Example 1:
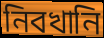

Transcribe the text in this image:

নিবখানি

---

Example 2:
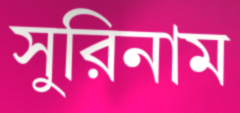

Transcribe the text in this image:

সুরিনাম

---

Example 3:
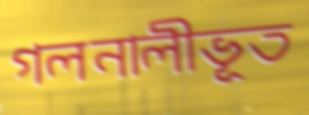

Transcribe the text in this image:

গলনালীভূত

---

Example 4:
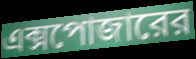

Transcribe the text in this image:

এক্সপোজারের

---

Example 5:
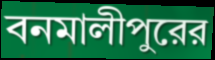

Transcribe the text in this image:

বনমালীপুরের